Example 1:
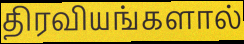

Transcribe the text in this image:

திரவியங்களால்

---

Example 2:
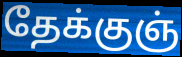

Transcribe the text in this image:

தேக்குஞ்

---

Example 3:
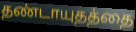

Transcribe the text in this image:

தண்டாயுதத்தை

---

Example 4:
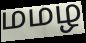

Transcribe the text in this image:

மமழ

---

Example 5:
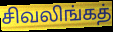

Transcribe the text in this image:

சிவலிங்கத்